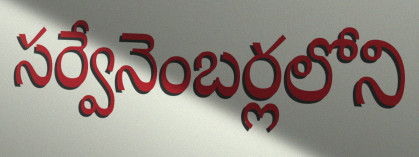
సర్వేనెంబర్లలోని